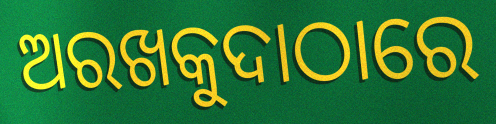
ଅରଖକୁଦାଠାରେ